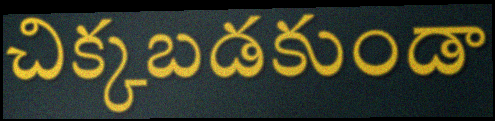
చిక్కబడకుండా